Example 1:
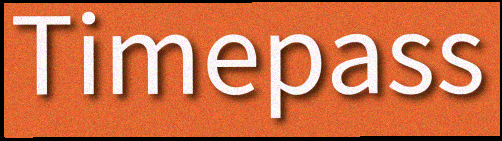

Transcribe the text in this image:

Timepass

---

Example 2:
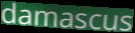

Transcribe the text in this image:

damascus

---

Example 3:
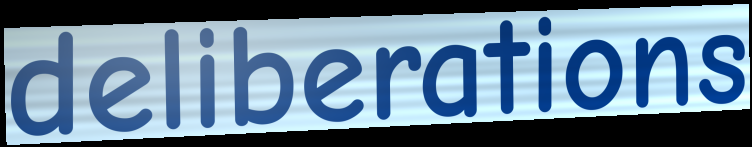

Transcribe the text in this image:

deliberations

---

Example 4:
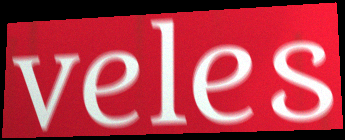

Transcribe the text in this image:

veles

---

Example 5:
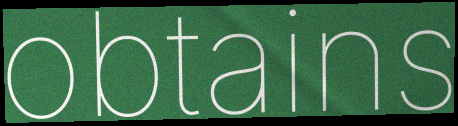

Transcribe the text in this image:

obtains